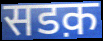
सडक़